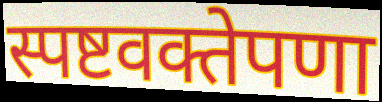
स्पष्टवक्तेपणा